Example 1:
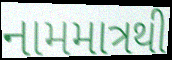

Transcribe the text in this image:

નામમાત્રથી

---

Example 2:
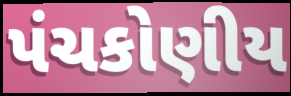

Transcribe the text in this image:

પંચકોણીય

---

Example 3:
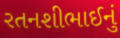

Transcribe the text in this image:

રતનશીભાઈનું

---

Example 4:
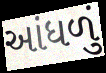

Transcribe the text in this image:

આંધળું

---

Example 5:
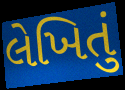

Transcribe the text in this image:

લેખિતું